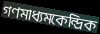
গণমাধ্যমকেন্দ্রিক